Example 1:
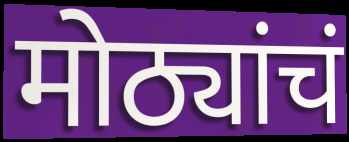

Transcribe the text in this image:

मोठ्यांचं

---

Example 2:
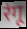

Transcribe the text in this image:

रंगू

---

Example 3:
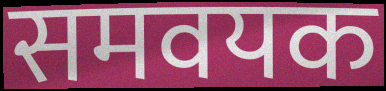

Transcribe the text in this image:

समवयक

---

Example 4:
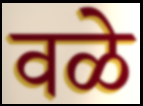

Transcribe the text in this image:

वळे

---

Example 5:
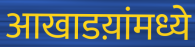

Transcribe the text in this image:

आखाडय़ांमध्ये